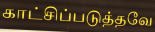
காட்சிப்படுத்தவே